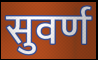
सुवर्ण